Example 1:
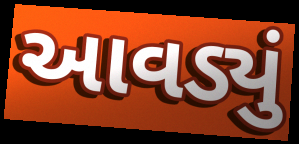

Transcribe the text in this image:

આવડ્યું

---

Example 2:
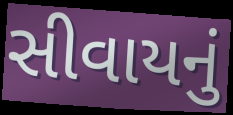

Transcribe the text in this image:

સીવાયનું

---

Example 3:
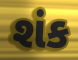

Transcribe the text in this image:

શંક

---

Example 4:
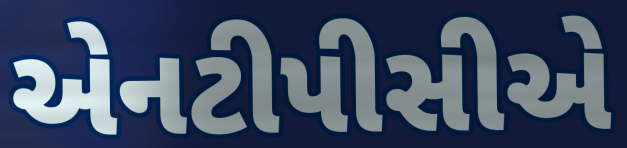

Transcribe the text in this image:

એનટીપીસીએ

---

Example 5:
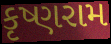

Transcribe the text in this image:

કૃષ્ણરામ